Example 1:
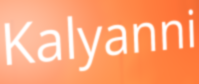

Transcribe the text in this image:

Kalyanni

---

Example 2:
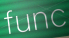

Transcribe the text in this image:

func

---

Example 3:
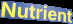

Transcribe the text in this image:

Nutrient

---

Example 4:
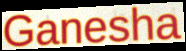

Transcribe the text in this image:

Ganesha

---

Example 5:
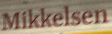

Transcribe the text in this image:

Mikkelsen